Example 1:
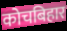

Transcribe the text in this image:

कोचबिहार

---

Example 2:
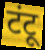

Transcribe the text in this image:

टंटू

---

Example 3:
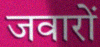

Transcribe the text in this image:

जवारों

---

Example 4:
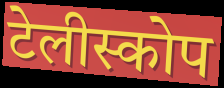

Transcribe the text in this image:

टेलीस्‍कोप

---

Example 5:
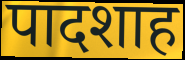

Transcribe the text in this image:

पादशाह